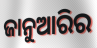
ଜାନୁଆରିର